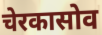
चेरकासोव